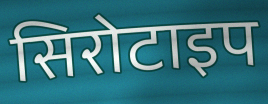
सिरोटाइप